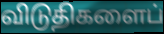
விடுதிகளைப்